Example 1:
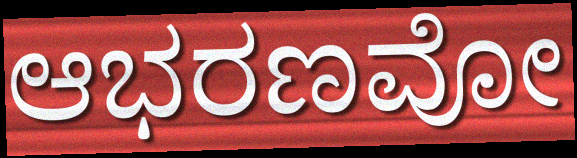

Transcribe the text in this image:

ಆಭರಣವೋ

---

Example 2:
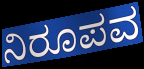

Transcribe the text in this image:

ನಿರೂಪವ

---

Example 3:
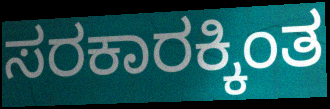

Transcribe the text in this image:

ಸರಕಾರಕ್ಕಿಂತ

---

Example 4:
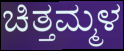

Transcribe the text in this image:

ಚಿತ್ತಮ್ಮಳ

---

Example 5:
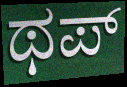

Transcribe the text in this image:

ಥಪ್